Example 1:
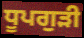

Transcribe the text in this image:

ਧੂਪਗੁੜੀ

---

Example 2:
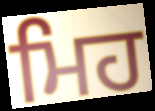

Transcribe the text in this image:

ਮਿਹ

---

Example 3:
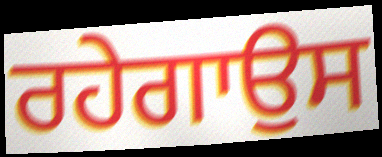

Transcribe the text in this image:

ਰਹੇਗਾਉਸ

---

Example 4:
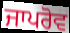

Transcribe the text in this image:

ਜਾਪਰੋਵ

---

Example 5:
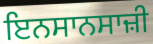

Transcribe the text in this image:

ਇਨਸਾਨਸਾਜ਼ੀ